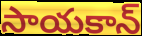
సాయకాన్